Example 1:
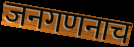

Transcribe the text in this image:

जनगणनाच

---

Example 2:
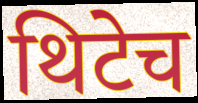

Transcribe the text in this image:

थिटेच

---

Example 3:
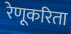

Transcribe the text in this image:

रेणूकरिता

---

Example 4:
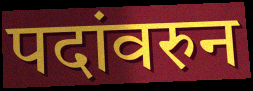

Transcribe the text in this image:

पदांवरुन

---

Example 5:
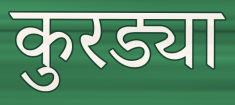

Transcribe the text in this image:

कुरड्या